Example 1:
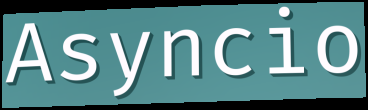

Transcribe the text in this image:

Asyncio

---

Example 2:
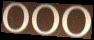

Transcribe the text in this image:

OOO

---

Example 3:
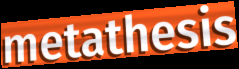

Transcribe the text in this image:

metathesis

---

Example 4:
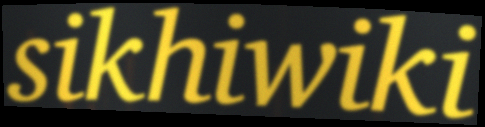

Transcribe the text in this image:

sikhiwiki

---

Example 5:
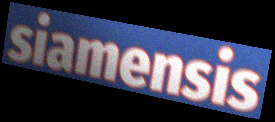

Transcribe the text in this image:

siamensis